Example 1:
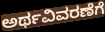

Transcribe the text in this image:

ಅರ್ಥವಿವರಣೆಗೆ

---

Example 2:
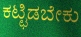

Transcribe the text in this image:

ಕಟ್ಟಿಡಬೇಕು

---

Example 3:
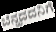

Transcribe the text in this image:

ಬೆನ್ಹದದನಿಗೆ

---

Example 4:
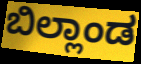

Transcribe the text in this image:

ಬಿಲ್ಲಾಂಡ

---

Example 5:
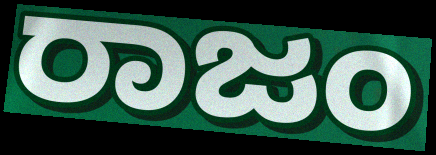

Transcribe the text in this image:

ರಾಜಂ